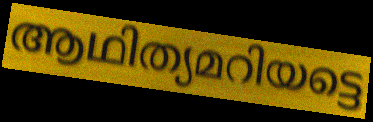
ആഥിത്യമറിയട്ടെ